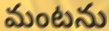
మంటను